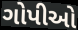
ગોપીઓ